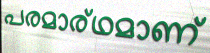
പരമാര്ഥമാണ്